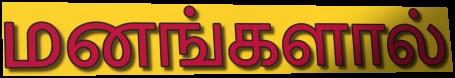
மனங்களால்